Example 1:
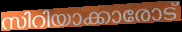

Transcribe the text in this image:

സിറിയാക്കാരോട്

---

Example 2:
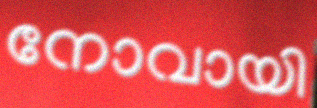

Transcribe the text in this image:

നോവായി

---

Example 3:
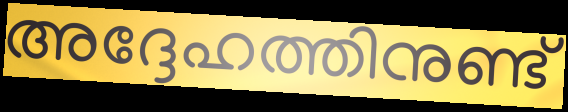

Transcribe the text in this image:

അദ്ദേഹത്തിനുണ്ട്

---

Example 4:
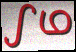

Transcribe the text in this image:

ഽഥ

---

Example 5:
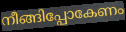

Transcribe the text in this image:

നീങ്ങിപ്പോകേണം